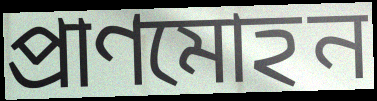
প্রাণমোহন